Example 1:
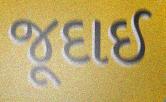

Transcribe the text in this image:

જૂદાઈ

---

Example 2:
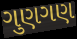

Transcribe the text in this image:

ગુણગણ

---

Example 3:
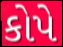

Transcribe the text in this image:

કોપે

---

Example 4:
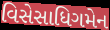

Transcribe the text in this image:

વિસેસાધિગમેન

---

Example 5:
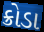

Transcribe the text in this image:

ક્રોડા